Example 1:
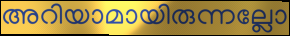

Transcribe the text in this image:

അറിയാമായിരുന്നല്ലോ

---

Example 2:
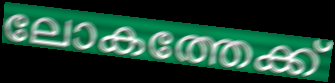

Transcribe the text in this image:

ലോകത്തേക്ക്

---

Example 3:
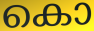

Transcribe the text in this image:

കൊ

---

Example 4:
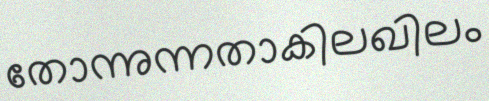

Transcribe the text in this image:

തോന്നുന്നതാകിലഖിലം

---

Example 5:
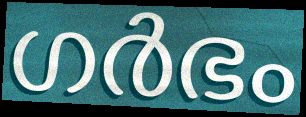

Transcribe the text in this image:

ഗർഭം